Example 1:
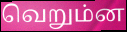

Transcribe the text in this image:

வெறும்ன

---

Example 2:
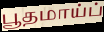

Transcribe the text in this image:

பூதமாய்ப்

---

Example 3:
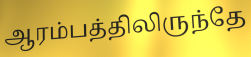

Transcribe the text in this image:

ஆரம்பத்திலிருந்தே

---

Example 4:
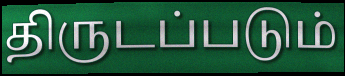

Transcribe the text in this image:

திருடப்படும்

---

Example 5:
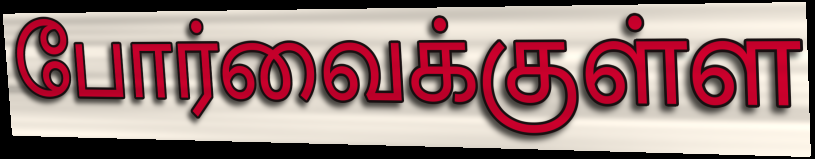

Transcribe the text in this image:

போர்வைக்குள்ள